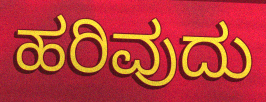
ಹರಿವುದು